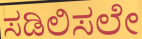
ಸಡಿಲಿಸಲೇ